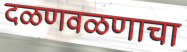
दळणवळणाचा